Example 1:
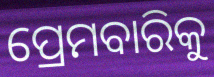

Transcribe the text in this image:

ପ୍ରେମବାରିକୁ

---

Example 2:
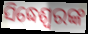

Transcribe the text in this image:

ସିଦ୍ଧେଶ୍ୱରଙ୍କ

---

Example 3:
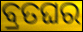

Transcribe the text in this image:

ବ୍ରତଘର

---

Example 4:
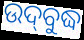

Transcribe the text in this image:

ଉଦ୍‍ବୁଦ୍ଧ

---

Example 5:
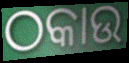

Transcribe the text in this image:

ଠକାଉ